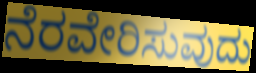
ನೆರವೇರಿಸುವುದು